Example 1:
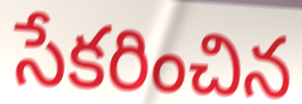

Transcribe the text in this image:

సేకరించిన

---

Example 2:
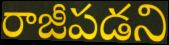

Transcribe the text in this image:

రాజీపడని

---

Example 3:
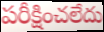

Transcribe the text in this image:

పరీక్షించలేదు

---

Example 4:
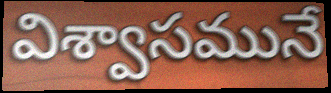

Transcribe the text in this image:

విశ్వాసమునే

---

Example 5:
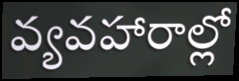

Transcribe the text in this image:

వ్యవహారాల్లో